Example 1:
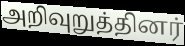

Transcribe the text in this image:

அறிவுறுத்தினர்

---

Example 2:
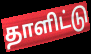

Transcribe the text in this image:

தாளிட்டு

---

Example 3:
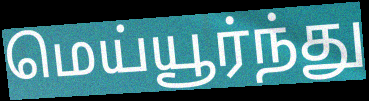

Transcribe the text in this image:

மெய்யூர்ந்து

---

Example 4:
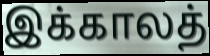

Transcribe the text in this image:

இக்காலத்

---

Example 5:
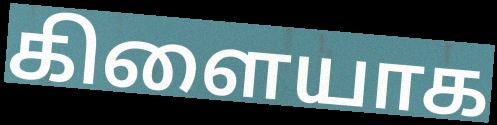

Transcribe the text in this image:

கிளையாக